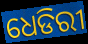
ଧେଡିରୀ